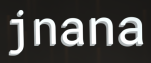
jnana